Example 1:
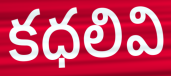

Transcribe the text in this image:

కధలివి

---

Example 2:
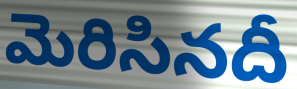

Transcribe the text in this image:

మెరిసినదీ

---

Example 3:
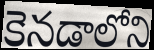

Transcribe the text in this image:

కెనడాలోని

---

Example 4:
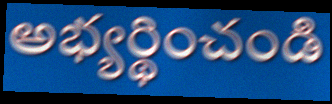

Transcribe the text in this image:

అభ్యర్థించండి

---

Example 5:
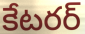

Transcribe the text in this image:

కేటరర్